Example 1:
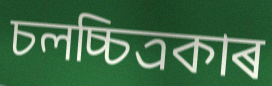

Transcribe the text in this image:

চলচ্চিত্ৰকাৰ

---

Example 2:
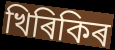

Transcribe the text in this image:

খিৰিকিৰ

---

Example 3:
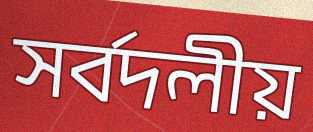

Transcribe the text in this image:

সৰ্বদলীয়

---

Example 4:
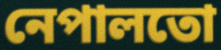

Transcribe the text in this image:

নেপালতো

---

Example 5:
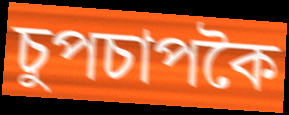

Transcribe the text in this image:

চুপচাপকৈ